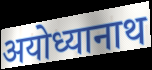
अयोध्यानाथ